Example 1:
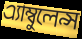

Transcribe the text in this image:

এ্যাম্বুলেন্স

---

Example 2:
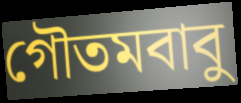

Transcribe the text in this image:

গৌতমবাবু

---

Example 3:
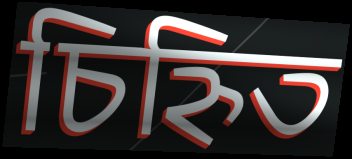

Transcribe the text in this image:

চিহ্নিত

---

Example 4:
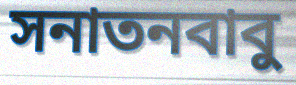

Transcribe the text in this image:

সনাতনবাবু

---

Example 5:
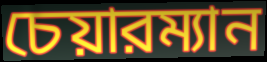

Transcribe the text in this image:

চেয়ারম্যান